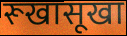
रूखासूखा